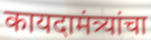
कायदामंत्र्यांचा